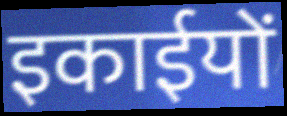
इकाईयों